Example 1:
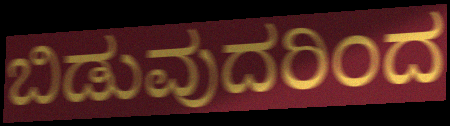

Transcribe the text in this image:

ಬಿಡುವುದರಿಂದ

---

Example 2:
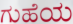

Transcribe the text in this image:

ಗುಹೆಯ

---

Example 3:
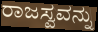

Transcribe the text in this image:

ರಾಜಸ್ವವನ್ನು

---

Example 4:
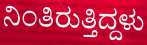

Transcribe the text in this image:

ನಿಂತಿರುತ್ತಿದ್ದಳು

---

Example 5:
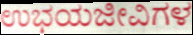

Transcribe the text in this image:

ಉಭಯಜೀವಿಗಳ